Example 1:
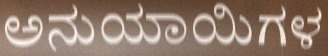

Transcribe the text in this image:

ಅನುಯಾಯಿಗಳ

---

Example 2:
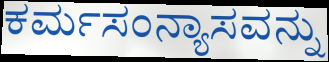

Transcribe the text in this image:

ಕರ್ಮಸಂನ್ಯಾಸವನ್ನು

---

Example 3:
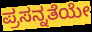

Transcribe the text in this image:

ಪ್ರಸನ್ನತೆಯೇ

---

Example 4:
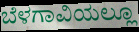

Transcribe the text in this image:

ಬೆಳಗಾವಿಯಲ್ಲೂ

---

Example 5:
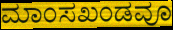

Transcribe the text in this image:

ಮಾಂಸಖಂಡವೂ